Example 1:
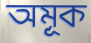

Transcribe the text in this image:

অমূক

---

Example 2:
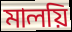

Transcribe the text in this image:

মালয়ি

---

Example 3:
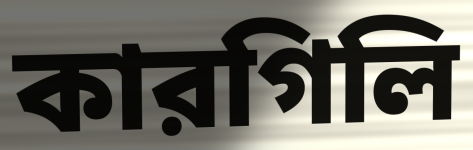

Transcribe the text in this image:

কারগিলি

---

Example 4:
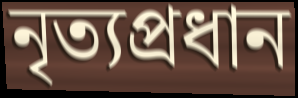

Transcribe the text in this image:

নৃত্যপ্রধান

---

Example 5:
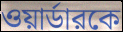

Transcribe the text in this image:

ওয়ার্ডারকে